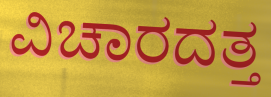
ವಿಚಾರದತ್ತ